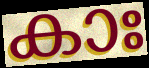
കാഃ